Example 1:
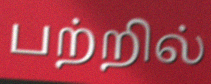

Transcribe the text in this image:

பற்றில்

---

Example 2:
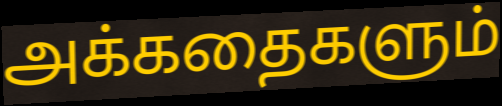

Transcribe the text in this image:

அக்கதைகளும்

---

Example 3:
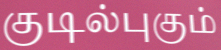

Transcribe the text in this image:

குடில்புகும்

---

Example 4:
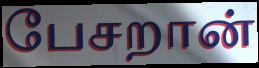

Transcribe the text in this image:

பேசறான்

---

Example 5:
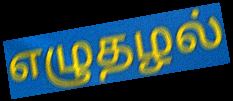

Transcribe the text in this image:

எழுதழல்